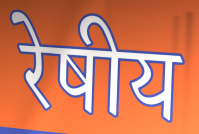
रेषीय